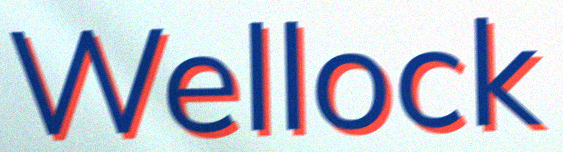
Wellock